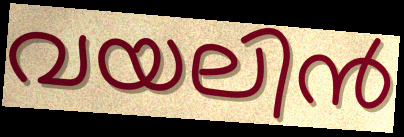
വയലിൻ